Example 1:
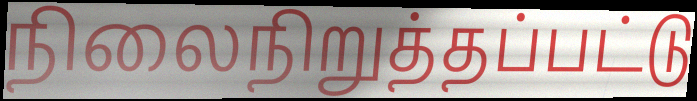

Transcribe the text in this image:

நிலைநிறுத்தப்பட்டு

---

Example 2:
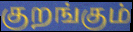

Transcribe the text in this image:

குறங்கும்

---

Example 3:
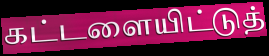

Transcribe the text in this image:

கட்டளையிட்டுத்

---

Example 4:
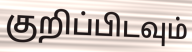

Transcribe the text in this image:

குறிப்பிடவும்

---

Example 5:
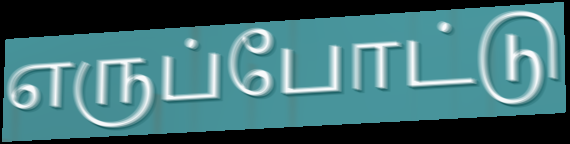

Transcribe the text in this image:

எருப்போட்டு